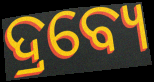
ଦ୍ରବ୍ୟେ